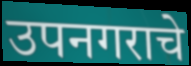
उपनगराचे